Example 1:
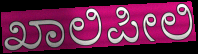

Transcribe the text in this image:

ಖಾಲಿಪೀಲಿ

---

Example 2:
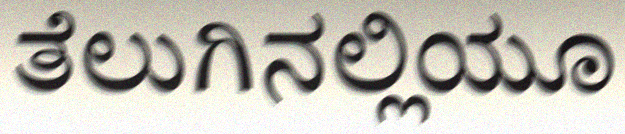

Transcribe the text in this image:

ತೆಲುಗಿನಲ್ಲಿಯೂ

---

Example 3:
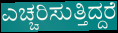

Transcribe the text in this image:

ಎಚ್ಚರಿಸುತ್ತಿದ್ದರೆ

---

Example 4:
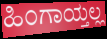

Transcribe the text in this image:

ಹಿಂಗಾಯ್ತಲ್ಲ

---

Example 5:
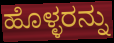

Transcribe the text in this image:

ಹೊಳ್ಳರನ್ನು